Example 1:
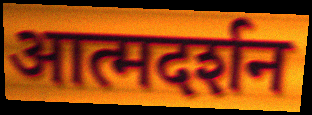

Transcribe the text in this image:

आत्मदर्शन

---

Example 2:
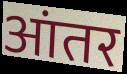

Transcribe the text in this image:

आंतर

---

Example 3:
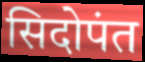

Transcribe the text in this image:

सिदोपंत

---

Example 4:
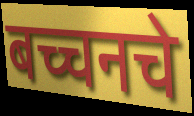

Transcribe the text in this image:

बच्चनचे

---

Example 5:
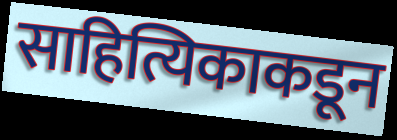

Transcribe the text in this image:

साहित्यिकाकडून